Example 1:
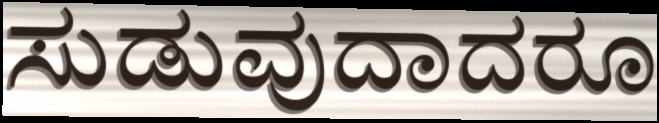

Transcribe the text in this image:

ಸುಡುವುದಾದರೂ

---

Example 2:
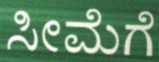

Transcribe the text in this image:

ಸೀಮೆಗೆ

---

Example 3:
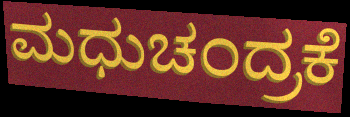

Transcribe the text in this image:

ಮಧುಚಂದ್ರಕೆ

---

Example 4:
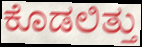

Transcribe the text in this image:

ಕೊಡಲಿತ್ತು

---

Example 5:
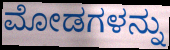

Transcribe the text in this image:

ಮೋಡಗಳನ್ನು